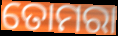
ତୋମରା